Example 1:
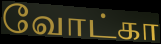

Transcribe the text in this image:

வோட்கா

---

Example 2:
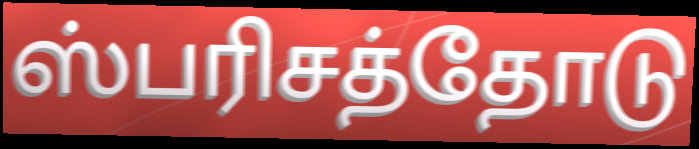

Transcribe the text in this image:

ஸ்பரிசத்தோடு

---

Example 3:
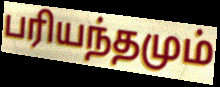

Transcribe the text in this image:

பரியந்தமும்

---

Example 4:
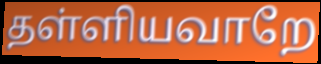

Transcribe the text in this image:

தள்ளியவாறே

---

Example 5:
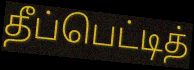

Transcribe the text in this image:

தீப்பெட்டித்